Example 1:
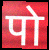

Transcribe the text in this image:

पो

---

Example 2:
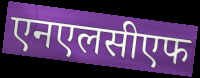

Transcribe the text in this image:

एनएलसीएफ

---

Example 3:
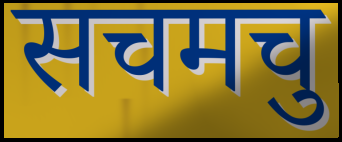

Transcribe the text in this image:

सचमचु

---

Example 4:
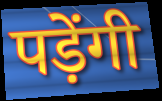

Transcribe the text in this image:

पड़ेंगी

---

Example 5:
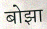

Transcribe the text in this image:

बोझा